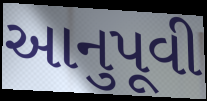
આનુપૂવી